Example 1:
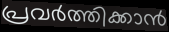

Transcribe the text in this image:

പ്രവർത്തിക്കാൻ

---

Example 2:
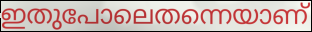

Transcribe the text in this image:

ഇതുപോലെതന്നെയാണ്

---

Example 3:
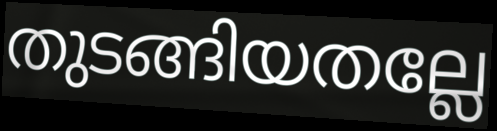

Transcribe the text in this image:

തുടങ്ങിയതല്ലേ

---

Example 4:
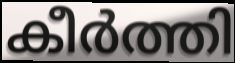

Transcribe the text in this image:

കീർത്തി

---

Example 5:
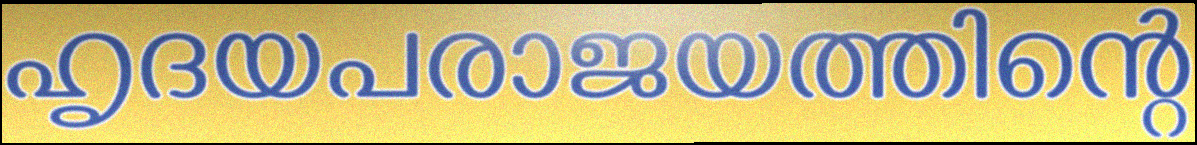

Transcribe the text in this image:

ഹൃദയപരാജയത്തിന്റെ